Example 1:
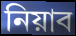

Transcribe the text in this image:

নিয়াব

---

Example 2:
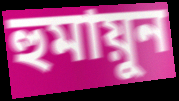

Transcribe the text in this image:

হুমায়ুন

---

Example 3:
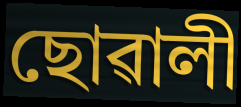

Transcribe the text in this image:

ছোৱালী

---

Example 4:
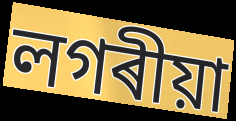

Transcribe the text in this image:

লগৰীয়া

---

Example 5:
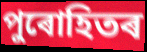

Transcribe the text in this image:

পুৰোহিতৰ